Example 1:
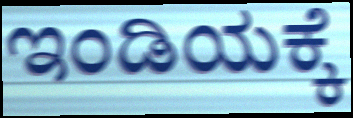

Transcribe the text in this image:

ಇಂಡಿಯಕ್ಕೆ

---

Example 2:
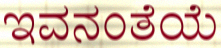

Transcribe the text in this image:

ಇವನಂತೆಯೆ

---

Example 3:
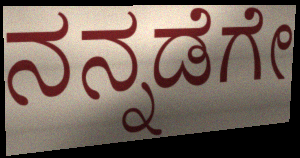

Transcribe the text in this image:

ನನ್ನಡೆಗೇ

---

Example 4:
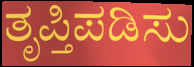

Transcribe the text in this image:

ತೃಪ್ತಿಪಡಿಸು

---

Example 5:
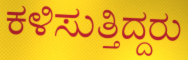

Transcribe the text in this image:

ಕಳಿಸುತ್ತಿದ್ದರು